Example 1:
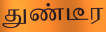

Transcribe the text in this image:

துண்டீர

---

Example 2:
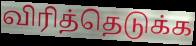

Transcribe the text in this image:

விரித்தெடுக்க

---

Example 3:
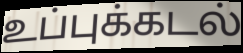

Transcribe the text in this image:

உப்புக்கடல்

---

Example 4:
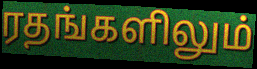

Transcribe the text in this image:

ரதங்களிலும்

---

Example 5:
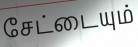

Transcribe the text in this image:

சேட்டையும்